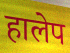
हालेप